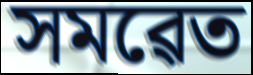
সমৱেত